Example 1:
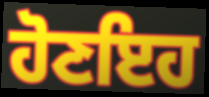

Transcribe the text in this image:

ਹੋਣਇਹ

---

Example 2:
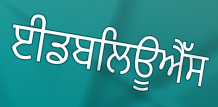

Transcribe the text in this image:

ਈਡਬਲਿਊਐੱਸ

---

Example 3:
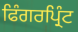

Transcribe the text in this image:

ਫਿੰਗਰਪ੍ਰਿੰਟ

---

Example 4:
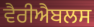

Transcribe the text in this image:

ਵੈਰੀਐਬਲਸ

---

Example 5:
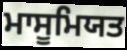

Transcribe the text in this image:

ਮਾਸੂਮਿਯਤ